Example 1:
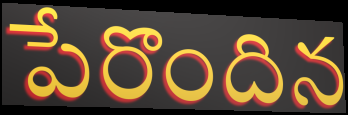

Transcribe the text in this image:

పేరొందిన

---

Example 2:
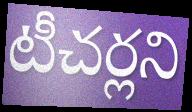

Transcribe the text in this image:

టీచర్లని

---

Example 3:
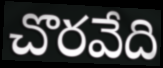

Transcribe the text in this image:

చొరవేది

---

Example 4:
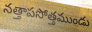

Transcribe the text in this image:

నత్తాపసోత్తముండు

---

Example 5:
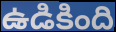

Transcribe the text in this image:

ఉడికింది